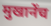
मुखानेंच